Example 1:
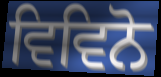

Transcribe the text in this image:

ਵਿਵਿਨੋ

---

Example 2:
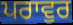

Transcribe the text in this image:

ਪਰਾਵੁਰ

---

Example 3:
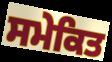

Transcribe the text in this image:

ਸਮੇਕਿਤ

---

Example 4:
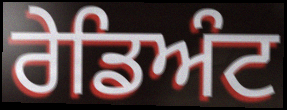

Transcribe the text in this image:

ਰੇਡਿਅੰਟ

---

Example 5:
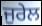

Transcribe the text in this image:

ਜੁਰੇਲ